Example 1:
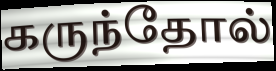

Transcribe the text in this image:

கருந்தோல்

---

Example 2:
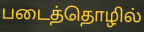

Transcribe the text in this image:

படைத்தொழில்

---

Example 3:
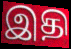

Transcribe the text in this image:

இதி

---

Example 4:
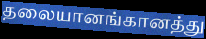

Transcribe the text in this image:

தலையானங்கானத்து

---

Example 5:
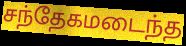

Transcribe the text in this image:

சந்தேகமடைந்த